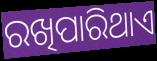
ରଖିପାରିଥାଏ